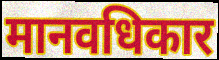
मानवधिकार